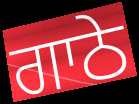
ਗਾਠੇ